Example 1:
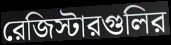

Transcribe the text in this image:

রেজিস্টারগুলির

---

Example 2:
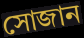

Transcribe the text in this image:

সোজান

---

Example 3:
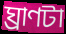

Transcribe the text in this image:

ঘ্রাণটা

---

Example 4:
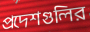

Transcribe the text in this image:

প্রদেশগুলির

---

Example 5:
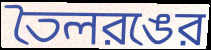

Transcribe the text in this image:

তৈলরঙের